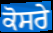
ਕੋਸਰੇ